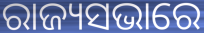
ରାଜ୍ୟସଭାରେ